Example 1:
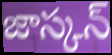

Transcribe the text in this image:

జాస్కన్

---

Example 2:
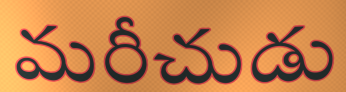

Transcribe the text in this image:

మరీచుడు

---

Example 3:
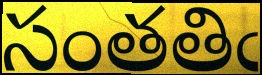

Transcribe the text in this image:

సంతతిఁ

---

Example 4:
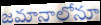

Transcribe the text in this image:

జమానాలోనూ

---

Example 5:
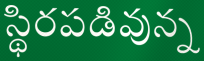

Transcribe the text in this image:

స్థిరపడివున్న